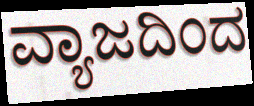
ವ್ಯಾಜದಿಂದ